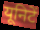
यूनिटें